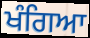
ਖੰਗਿਆ